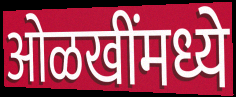
ओळखींमध्ये